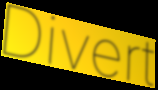
Divert